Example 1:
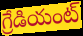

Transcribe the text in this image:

గ్రేడియంట్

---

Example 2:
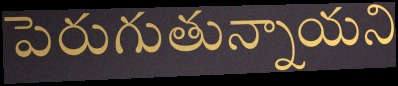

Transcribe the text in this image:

పెరుగుతున్నాయని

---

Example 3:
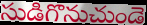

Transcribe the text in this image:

సుడిగొనుచుండె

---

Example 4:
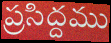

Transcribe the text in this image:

ప్రసిద్దము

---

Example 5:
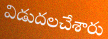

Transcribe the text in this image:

విడుదలచేశారు